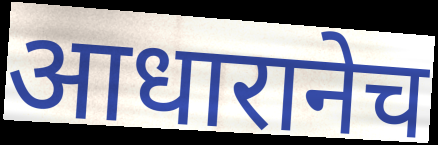
आधारानेच